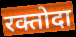
रक्तोदा